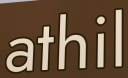
athil